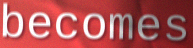
becomes